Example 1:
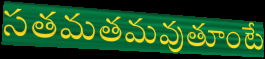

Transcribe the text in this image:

సతమతమవుతూంటే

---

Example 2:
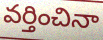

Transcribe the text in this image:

వర్తించినా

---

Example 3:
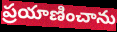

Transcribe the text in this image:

ప్రయాణించాను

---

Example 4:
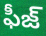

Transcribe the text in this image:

ఫీజ్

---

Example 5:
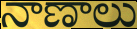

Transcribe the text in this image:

నాణాలు